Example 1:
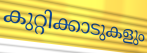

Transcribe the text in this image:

കുറ്റിക്കാടുകളും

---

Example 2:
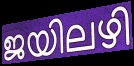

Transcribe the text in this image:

ജയിലഴി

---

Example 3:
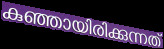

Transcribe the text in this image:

കുഞ്ഞായിരിക്കുന്നത്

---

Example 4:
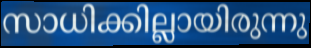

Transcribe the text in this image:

സാധിക്കില്ലായിരുന്നു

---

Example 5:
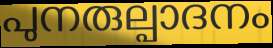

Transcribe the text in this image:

പുനരുല്പാദനം